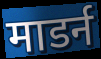
माडर्न